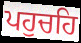
ਪਹੁਚਹਿ